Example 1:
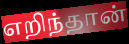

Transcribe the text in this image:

எறிந்தான்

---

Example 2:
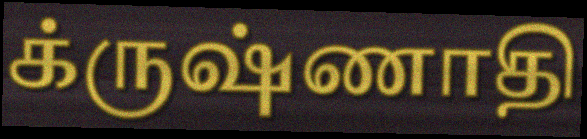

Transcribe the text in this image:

க்ருஷ்ணாதி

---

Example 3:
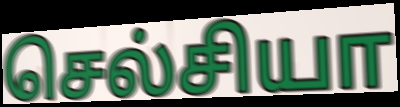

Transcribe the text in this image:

செல்சியா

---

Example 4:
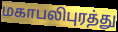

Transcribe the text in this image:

மகாபலிபுரத்து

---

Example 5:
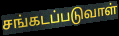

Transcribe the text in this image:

சங்கடப்படுவாள்